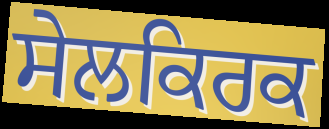
ਸੇਲਕਿਰਕ